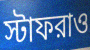
স্টাফরাও